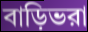
বাড়িভরা